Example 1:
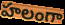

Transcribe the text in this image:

హలంగా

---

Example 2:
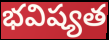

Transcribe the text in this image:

భవిష్యత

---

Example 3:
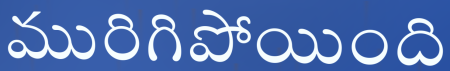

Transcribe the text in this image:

మురిగిపోయింది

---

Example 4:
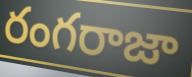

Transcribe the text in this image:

రంగరాజా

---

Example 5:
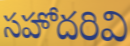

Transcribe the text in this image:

సహోదరివి